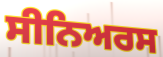
ਸੀਨਿਅਰਸ